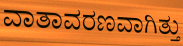
ವಾತಾವರಣವಾಗಿತ್ತು